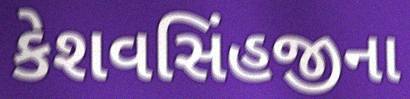
કેશવસિંહજીના